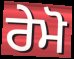
ਰੇਮੋ